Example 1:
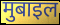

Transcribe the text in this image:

मुबाइल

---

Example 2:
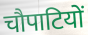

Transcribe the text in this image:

चौपाटियों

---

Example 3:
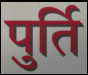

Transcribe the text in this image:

पुर्ति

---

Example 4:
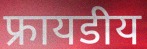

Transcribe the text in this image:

फ्रायडीय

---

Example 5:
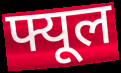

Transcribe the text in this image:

फ्यूल